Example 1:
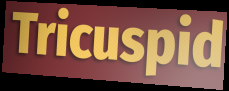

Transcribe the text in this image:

Tricuspid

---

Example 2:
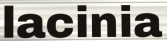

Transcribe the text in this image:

lacinia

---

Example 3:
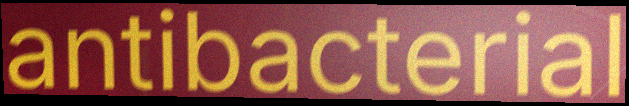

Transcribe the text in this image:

antibacterial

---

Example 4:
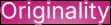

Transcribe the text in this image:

Originality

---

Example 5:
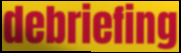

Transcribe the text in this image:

debriefing